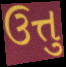
ઉત્તુ